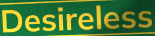
Desireless